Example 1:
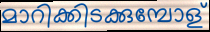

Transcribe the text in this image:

മാറിക്കിടക്കുമ്പോള്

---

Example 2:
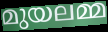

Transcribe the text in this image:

മുയലമ്മ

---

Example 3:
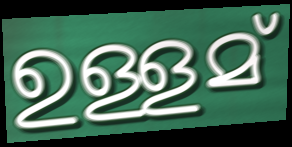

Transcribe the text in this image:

ഉള്ളമ്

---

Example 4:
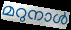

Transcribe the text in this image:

മറുനാൾ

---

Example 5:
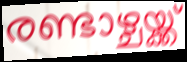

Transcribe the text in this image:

രണ്ടാഴ്ചയ്ക്ക്